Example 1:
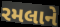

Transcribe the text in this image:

રમલાને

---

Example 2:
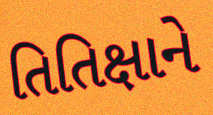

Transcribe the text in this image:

તિતિક્ષાને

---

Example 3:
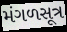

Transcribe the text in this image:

મંગળસૂત્ર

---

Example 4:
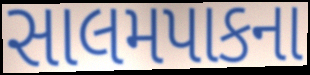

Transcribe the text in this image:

સાલમપાકના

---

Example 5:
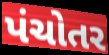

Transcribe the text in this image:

પંચોતર